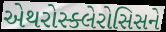
એથરોસ્ક્લેરોસિસને